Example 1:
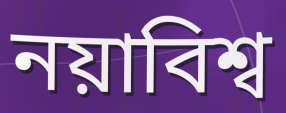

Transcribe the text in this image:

নয়াবিশ্ব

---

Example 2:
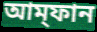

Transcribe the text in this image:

আম্‌ফান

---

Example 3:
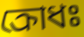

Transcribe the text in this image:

ক্রোধঃ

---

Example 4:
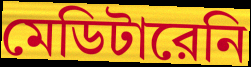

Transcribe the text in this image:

মেডিটারেনি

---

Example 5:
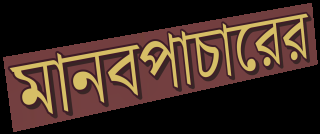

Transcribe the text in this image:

মানবপাচারের